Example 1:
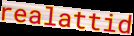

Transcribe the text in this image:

realattid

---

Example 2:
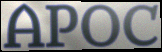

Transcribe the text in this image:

APOC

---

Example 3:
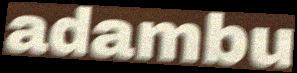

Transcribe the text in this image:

adambu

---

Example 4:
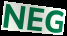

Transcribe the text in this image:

NEG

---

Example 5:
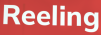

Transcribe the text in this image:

Reeling